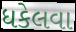
ધકેલવા